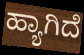
ಹ್ಯಾಗಿದೆ